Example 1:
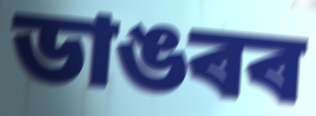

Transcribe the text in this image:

ডাঙৰৰ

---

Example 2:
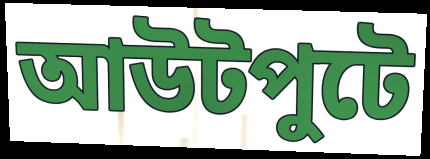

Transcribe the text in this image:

আউটপুটে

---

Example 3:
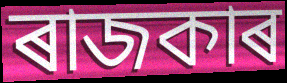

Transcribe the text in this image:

ৰাজকাৰ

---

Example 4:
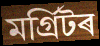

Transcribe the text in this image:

মৰ্গ্ৰিটৰ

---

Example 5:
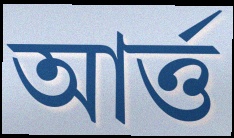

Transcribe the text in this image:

আৰ্ত্ত